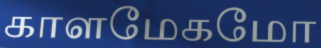
காளமேகமோ